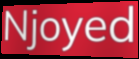
Njoyed